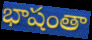
భాషంతా